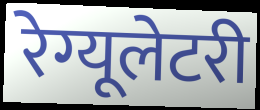
रेग्यूलेटरी